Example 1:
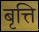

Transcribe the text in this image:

बृत्ति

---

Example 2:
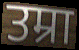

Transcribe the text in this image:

उम्रा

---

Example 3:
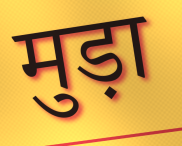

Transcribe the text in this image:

मुड़ा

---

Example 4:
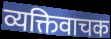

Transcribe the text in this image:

व्यक्तिवाचक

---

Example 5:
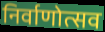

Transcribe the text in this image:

निर्वाणोत्सव